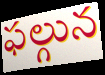
ఫల్గున